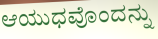
ಆಯುಧವೊಂದನ್ನು